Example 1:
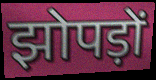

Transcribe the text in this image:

झोपड़ों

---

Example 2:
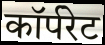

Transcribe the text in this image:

कॉर्परेट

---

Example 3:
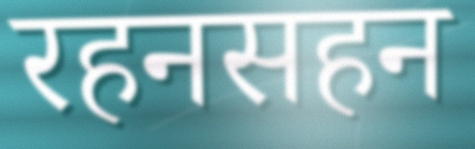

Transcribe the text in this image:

रहनसहन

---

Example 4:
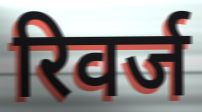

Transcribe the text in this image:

रिवर्ज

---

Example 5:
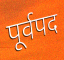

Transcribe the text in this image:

पूर्वपद